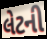
લેટની